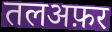
तलअफ़र